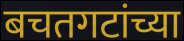
बचतगटांच्या